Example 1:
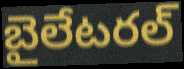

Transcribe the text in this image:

బైలేటరల్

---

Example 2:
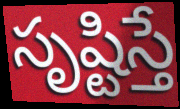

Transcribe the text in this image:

సృష్టిస్తే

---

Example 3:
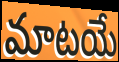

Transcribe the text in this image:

మాటయే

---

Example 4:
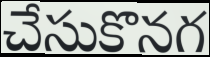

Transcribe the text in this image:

చేసుకొనగ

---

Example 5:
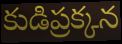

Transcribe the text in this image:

కుడిప్రక్కన